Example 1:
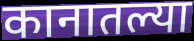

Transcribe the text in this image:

कानातल्या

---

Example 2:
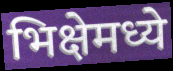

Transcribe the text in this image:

भिक्षेमध्ये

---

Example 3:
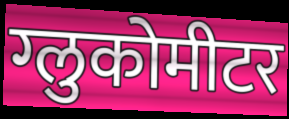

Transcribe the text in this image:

ग्लुकोमीटर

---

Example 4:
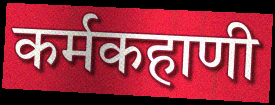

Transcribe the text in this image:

कर्मकहाणी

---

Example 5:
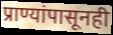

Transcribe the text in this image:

प्राण्यांपासूनही